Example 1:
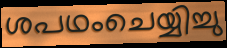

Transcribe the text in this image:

ശപഥംചെയ്യിച്ചു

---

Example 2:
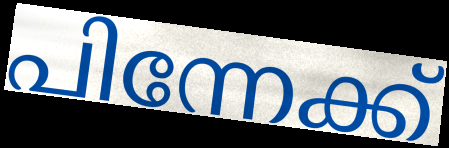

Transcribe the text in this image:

പിന്നേക്ക്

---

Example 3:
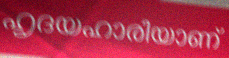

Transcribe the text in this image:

ഹൃദയഹാരിയാണ്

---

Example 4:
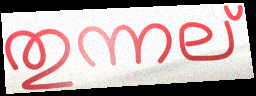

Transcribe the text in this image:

തുന്നല്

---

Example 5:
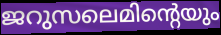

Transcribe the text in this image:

ജറുസലെമിന്റെയും